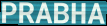
PRABHA